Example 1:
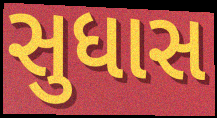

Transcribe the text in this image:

સુધાસ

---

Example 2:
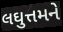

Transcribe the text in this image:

લઘુત્તમને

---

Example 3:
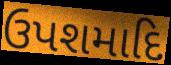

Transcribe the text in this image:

ઉપશમાદિ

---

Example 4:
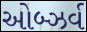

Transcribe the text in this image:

ઓબ્ઝર્વ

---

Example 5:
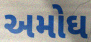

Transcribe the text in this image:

અમોઘ